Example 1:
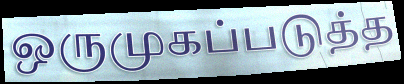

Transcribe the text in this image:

ஒருமுகப்படுத்த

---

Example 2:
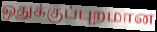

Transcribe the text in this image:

ஒதுக்குப்புறமான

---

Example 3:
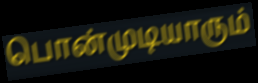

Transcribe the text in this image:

பொன்முடியாரும்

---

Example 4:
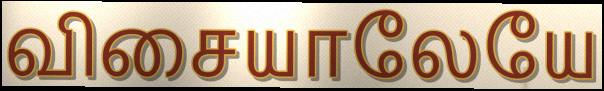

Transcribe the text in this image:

விசையாலேயே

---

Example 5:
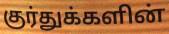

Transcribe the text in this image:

குர்துக்களின்